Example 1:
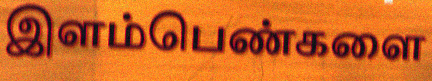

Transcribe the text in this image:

இளம்பெண்களை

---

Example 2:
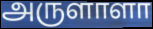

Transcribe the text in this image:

அருளாளா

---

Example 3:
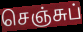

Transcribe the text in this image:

செஞ்சுப்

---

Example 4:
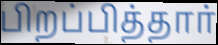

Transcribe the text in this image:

பிறப்பித்தார்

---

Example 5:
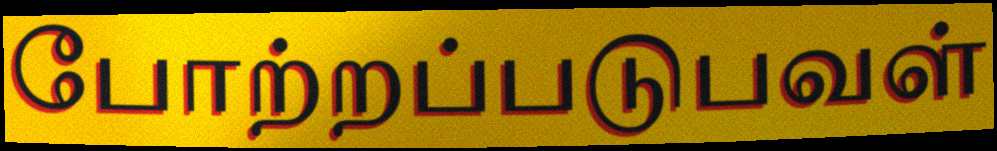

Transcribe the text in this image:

போற்றப்படுபவள்